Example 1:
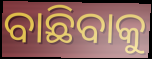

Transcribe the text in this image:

ବାଛିବାକୁ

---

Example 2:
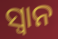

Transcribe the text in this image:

ସ୍ୱାନ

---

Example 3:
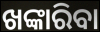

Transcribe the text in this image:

ଖଙ୍କାରିବା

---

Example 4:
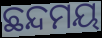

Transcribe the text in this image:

ଛନ୍ଦମୟ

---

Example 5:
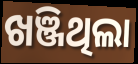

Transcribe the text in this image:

ଖଞ୍ଜିଥିଲା